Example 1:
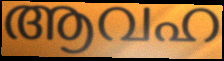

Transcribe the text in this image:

ആവഹ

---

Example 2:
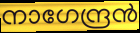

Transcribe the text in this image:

നാഗേന്ദ്രൻ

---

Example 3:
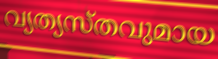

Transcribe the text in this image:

വ്യത്യസ്തവുമായ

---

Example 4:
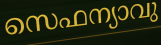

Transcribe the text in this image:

സെഫന്യാവു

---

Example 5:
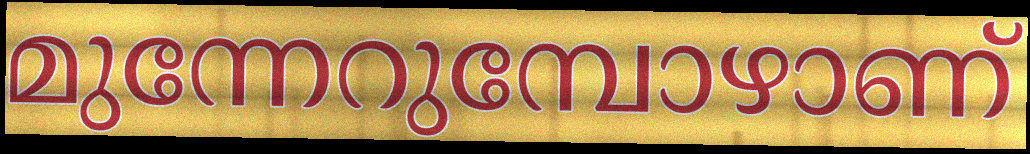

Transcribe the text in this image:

മുന്നേറുമ്പോഴാണ്